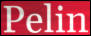
Pelin